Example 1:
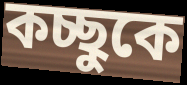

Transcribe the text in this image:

কচ্ছুকে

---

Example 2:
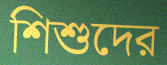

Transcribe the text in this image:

শিশুদের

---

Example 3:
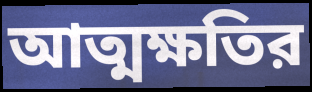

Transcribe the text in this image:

আত্মক্ষতির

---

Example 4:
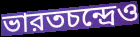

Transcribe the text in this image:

ভারতচন্দ্রেও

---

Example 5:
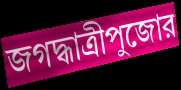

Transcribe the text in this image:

জগদ্ধাত্রীপুজোর